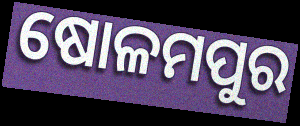
ଷୋଳମପୁର